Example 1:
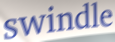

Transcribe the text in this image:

swindle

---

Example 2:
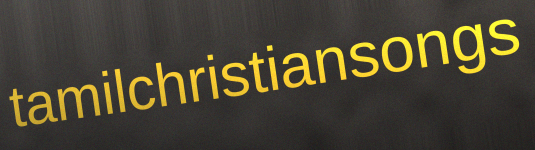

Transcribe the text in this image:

tamilchristiansongs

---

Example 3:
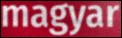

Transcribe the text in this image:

magyar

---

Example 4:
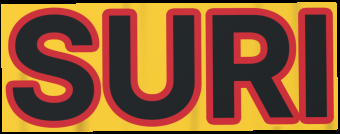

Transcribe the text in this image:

SURI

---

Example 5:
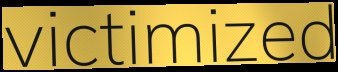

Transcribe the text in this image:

victimized